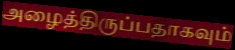
அழைத்திருப்பதாகவும்